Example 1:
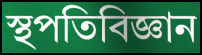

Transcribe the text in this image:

স্থপতিবিজ্ঞান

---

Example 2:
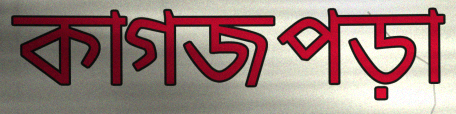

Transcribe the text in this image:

কাগজপড়া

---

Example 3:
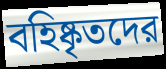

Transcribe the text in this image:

বহিষ্কৃতদের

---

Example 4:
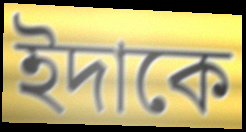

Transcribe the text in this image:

ইদাকে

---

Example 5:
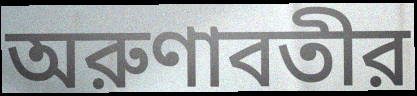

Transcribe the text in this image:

অরুণাবতীর